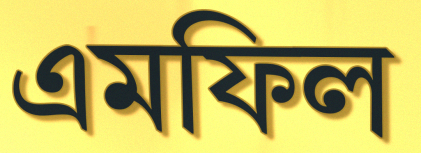
এমফিল